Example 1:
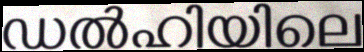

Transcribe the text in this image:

ഡൽഹിയിലെ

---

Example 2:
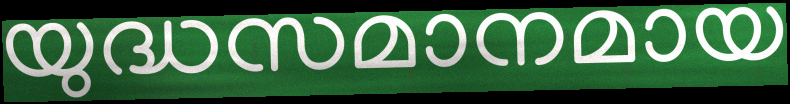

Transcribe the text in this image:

യുദ്ധസമാനമായ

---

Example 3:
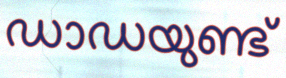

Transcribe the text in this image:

ഡാഡയുണ്ട്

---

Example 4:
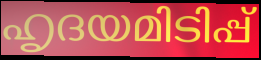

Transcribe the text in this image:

ഹൃദയമിടിപ്പ്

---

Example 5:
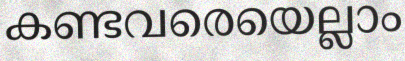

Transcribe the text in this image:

കണ്ടവരെയെല്ലാം